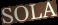
SOLA